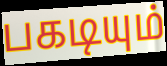
பகடியும்